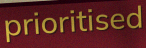
prioritised